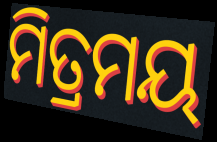
ମିତ୍ରମୟ